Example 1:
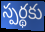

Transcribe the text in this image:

స్పర్థకు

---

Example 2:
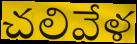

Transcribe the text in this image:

చలివేళ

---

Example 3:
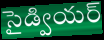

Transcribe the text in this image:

సైడ్వియర్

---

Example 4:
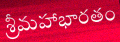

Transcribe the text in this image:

శ్రీమహాభారతం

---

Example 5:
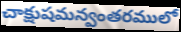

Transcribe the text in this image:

చాక్షుషమన్వంతరములో